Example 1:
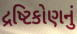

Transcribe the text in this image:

દ્રષ્ટિકોણનું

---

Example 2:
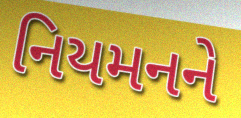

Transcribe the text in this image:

નિયમનને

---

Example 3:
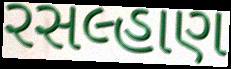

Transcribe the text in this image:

રસલ્હાણ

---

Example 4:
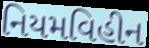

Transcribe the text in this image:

નિયમવિહીન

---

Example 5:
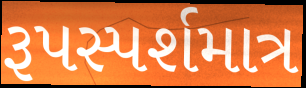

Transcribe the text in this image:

રૂપસ્પર્શમાત્ર